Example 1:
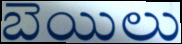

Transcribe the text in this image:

బెయిలు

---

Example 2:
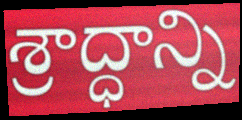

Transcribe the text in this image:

శ్రాద్ధాన్ని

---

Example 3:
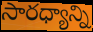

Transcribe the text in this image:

సారధ్యాన్ని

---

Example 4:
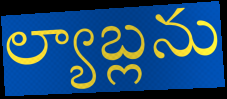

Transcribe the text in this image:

ల్యాబ్లను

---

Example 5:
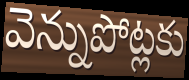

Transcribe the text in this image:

వెన్నుపోట్లకు